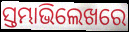
ସ୍ତମ୍ଭାଭିଲେଖରେ